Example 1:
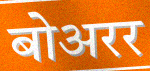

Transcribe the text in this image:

बोअरर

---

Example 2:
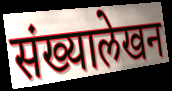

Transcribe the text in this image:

संख्यालेखन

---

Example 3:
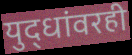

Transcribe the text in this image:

युद्धांवरही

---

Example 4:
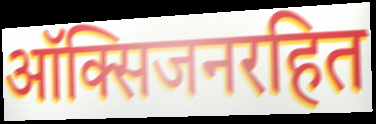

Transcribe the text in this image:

ऑक्सिजनरहित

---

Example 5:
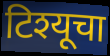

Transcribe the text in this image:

टिश्यूचा